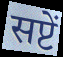
सप्टें